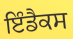
ਇੰਡੈਕਸ